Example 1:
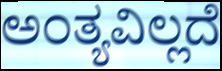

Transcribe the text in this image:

ಅಂತ್ಯವಿಲ್ಲದೆ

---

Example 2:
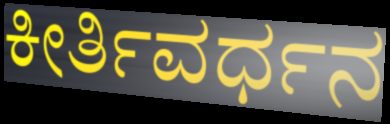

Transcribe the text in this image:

ಕೀರ್ತಿವರ್ಧನ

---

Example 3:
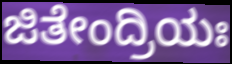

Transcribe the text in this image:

ಜಿತೇಂದ್ರಿಯಃ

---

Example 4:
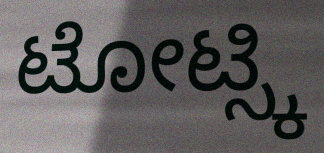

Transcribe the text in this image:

ಟೋಟ್ಸ್ಕಿ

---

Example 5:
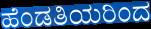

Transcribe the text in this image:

ಹೆಂಡತಿಯರಿಂದ